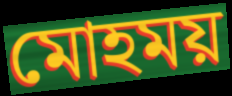
মোহময়